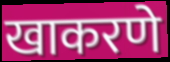
खाकरणे